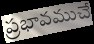
ప్రభావముచే